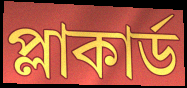
প্লাকার্ড